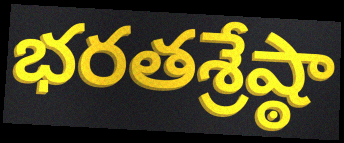
భరతశ్రేష్ఠా